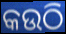
କଉଠି